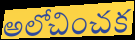
అలోచించక